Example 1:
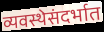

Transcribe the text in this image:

व्यवस्थेसंदर्भात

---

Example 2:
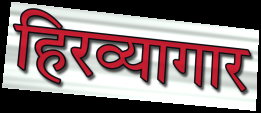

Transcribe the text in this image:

हिरव्यागार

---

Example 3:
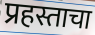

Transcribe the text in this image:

प्रहस्ताचा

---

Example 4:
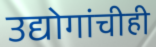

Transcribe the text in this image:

उद्योगांचीही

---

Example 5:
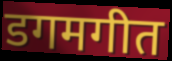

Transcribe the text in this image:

डगमगीत